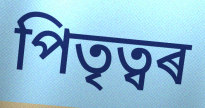
পিতৃত্বৰ